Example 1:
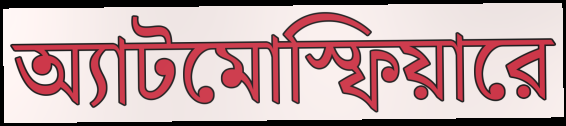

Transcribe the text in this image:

অ্যাটমোস্ফিয়ারে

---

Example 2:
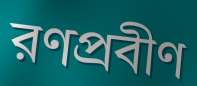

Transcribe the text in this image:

রণপ্রবীণ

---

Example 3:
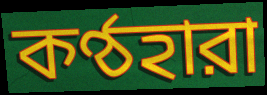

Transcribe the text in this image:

কণ্ঠহারা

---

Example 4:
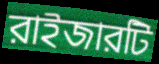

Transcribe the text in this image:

রাইজারটি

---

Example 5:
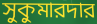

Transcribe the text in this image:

সুকুমারদার